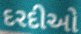
દરદીઓ